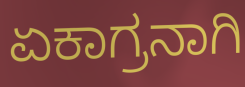
ಏಕಾಗ್ರನಾಗಿ